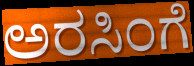
ಅರಸಿಂಗೆ